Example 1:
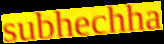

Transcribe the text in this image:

subhechha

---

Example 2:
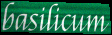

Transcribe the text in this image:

basilicum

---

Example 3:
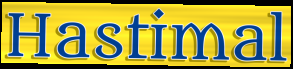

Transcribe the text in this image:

Hastimal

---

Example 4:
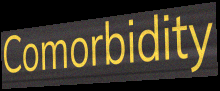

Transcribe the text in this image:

Comorbidity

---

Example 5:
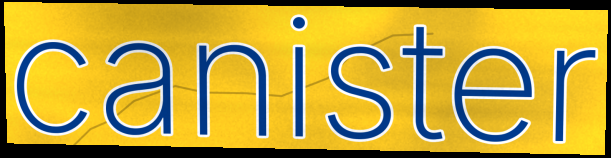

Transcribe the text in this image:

canister